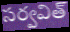
సర్వవిత్